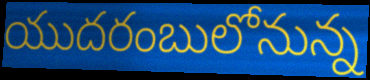
యుదరంబులోనున్న